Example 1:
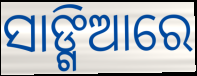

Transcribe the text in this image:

ସାଙ୍ଗିଆରେ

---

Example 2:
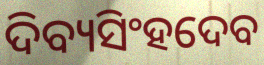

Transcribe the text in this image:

ଦିବ୍ୟସିଂହଦେବ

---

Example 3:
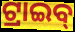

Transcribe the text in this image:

ଟ୍ରାଇବ୍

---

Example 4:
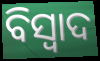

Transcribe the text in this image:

ବିସ୍ୱାଦ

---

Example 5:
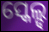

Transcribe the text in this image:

ସ୍କେଲ୍ଡ୍